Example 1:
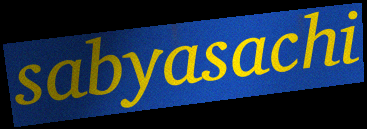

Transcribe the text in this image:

sabyasachi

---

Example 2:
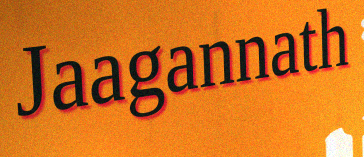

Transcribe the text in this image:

Jaagannath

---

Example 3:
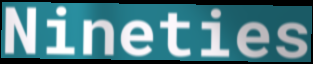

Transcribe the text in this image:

Nineties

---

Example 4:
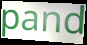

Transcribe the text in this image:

pand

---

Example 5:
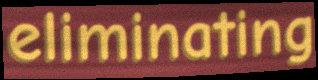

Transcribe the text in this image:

eliminating